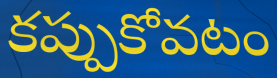
కప్పుకోవటం